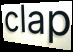
clap